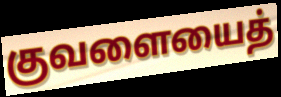
குவளையைத்